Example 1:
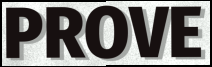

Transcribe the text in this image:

PROVE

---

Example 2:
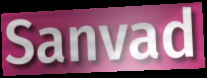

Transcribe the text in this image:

Sanvad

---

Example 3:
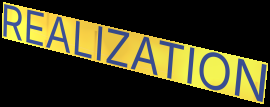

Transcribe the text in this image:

REALIZATION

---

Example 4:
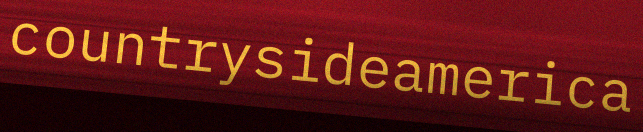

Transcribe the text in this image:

countrysideamerica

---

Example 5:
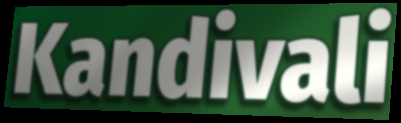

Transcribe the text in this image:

Kandivali